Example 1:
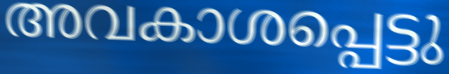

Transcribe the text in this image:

അവകാശപ്പെട്ടു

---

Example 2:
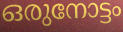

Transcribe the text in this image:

ഒരുനോട്ടം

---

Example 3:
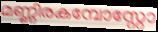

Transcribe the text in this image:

മണ്ണിരകമ്പോസ്റ്റോ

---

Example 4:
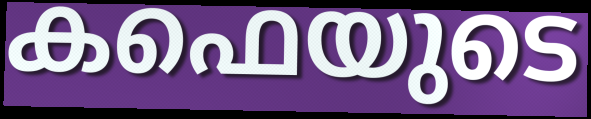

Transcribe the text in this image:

കഫെയുടെ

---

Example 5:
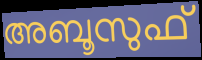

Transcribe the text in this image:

അബൂസുഫ്